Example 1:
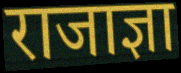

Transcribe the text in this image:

राजाज्ञा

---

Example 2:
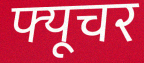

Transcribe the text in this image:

फ्यूचर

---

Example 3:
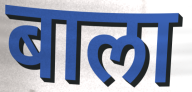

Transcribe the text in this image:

बाला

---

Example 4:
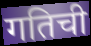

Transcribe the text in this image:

गतिची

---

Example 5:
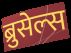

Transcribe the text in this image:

ब्रुसेल्स